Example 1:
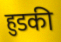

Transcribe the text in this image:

हुडकी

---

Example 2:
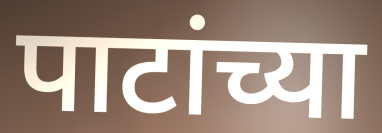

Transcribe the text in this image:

पाटांच्या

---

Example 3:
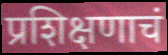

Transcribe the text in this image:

प्रशिक्षणाचं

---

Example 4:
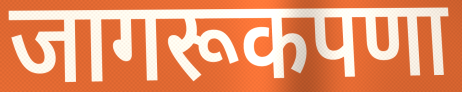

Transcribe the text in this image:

जागरूकपणा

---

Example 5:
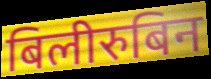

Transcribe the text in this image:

बिलीरुबिन